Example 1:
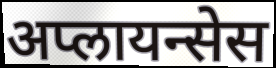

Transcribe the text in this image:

अप्लायन्सेस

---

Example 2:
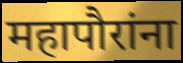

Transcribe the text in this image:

महापौरांना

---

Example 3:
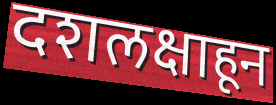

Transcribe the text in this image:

दशलक्षाहून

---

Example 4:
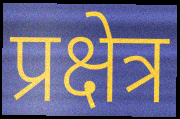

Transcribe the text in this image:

प्रक्षेत्र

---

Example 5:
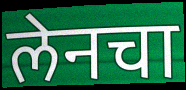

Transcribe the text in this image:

लेनचा